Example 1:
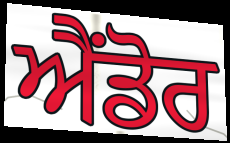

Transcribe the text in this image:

ਐਂਡੋਰ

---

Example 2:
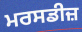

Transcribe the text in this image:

ਮਰਸਡੀਜ਼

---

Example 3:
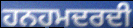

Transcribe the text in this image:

ਹਨਹਮਦਰਦੀ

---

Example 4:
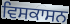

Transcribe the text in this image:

ਵਿਸਕਾਸਨ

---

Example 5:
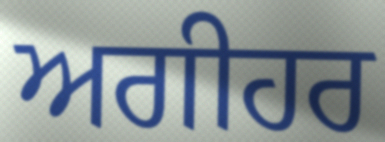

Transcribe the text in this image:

ਅਗੀਹਰ